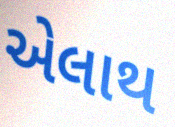
એલાથ